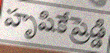
హృషికేష్రెడ్డి